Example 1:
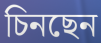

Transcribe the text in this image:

চিনছেন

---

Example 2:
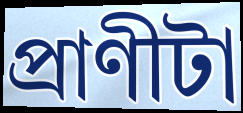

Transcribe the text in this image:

প্রাণীটা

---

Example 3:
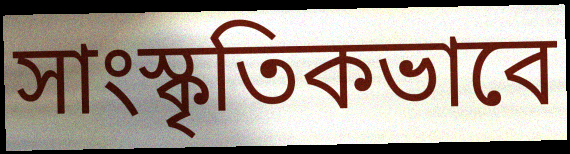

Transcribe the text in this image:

সাংস্কৃতিকভাবে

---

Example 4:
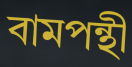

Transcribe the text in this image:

বামপন্থী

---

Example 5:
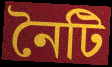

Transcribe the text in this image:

নৈটি